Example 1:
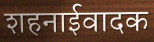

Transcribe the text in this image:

शहनाईवादक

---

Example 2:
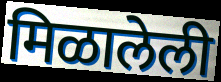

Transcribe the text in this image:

मिळालेली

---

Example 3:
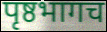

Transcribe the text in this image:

पृष्ठभागच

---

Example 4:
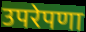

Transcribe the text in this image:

उपरेपणा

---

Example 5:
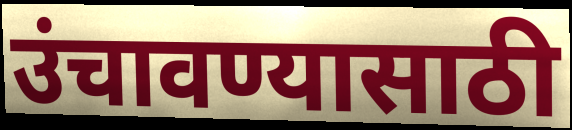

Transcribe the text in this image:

उंचावण्यासाठी